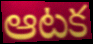
ఆటక